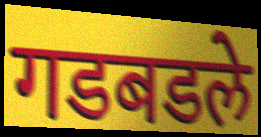
गडबडले